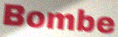
Bombe